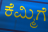
ಕೆಮ್ಮಿಗೆ